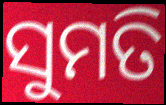
ସୁମତି